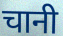
चानी